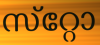
സ്‌റ്റോ